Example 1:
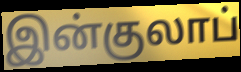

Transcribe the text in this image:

இன்குலாப்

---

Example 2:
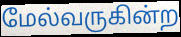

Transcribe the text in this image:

மேல்வருகின்ற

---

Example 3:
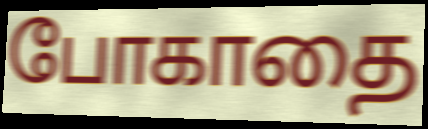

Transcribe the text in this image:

போகாதை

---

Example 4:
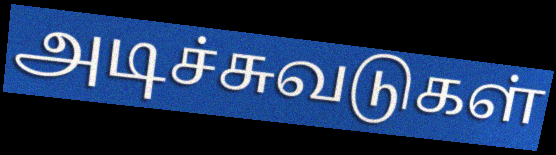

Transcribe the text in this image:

அடிச்சுவடுகள்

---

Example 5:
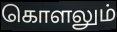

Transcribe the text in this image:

கொளலும்